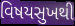
વિષયસુખથી